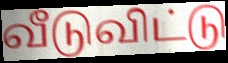
வீடுவிட்டு